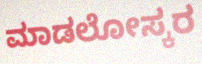
ಮಾಡಲೋಸ್ಕರ